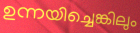
ഉന്നയിച്ചെങ്കിലും